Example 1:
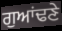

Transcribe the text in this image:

ਗੁਆਂਢਣੇ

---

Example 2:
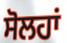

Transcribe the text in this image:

ਸੋਲਹਾਂ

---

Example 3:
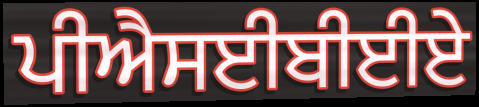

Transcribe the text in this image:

ਪੀਐਸਈਬੀਈਏ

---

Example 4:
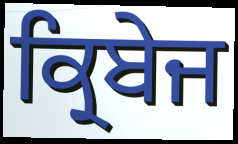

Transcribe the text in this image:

ਕ੍ਰਿਬੇਜ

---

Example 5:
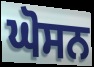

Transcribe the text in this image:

ਘੋਸਨ